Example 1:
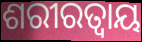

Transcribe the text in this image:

ଶରୀରତ୍ୱାୟ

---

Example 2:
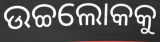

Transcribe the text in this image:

ଉଚ୍ଚଲୋକକୁ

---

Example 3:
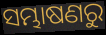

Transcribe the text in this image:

ସମ୍ଭାଷଣରୁ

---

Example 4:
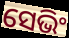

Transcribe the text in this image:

ସେଭିଂ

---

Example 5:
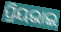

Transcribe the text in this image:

ପ୍ରିୟଭାଇ